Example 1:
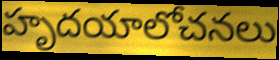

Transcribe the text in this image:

హృదయాలోచనలు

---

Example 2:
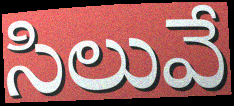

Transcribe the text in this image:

సిలువే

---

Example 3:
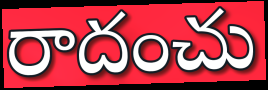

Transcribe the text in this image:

రాదంచు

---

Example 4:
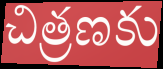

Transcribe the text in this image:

చిత్రణకు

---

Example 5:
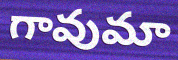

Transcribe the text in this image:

గావుమా